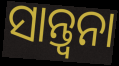
ସାନ୍ତ୍ବନା